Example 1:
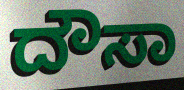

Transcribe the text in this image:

ದೌಸಾ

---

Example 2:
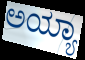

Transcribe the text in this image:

ಅಯ್ಯಾ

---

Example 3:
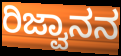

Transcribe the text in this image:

ರಿಜ್ವಾನನ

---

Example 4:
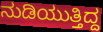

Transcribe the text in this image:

ನುಡಿಯುತ್ತಿದ್ದ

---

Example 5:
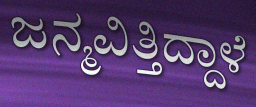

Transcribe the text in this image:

ಜನ್ಮವಿತ್ತಿದ್ದಾಳೆ